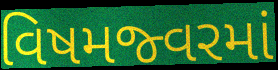
વિષમજ્વરમાં